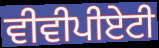
ਵੀਵੀਪੀਏਟੀ